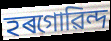
হৰগোৱিন্দ